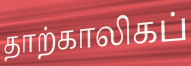
தாற்காலிகப்